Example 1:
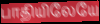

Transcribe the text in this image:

பாதியிலேயே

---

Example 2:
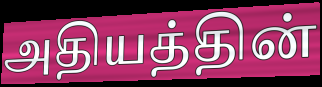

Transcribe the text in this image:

அதியத்தின்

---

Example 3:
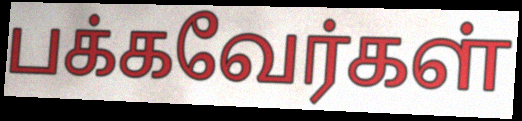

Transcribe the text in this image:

பக்கவேர்கள்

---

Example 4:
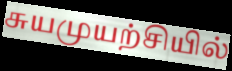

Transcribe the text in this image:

சுயமுயற்சியில்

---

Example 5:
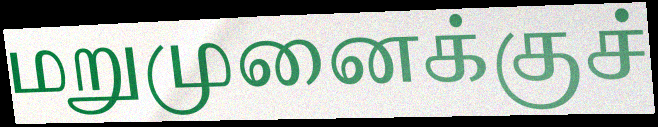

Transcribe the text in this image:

மறுமுனைக்குச்